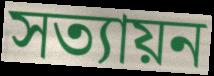
সত্যায়ন